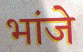
भांजे